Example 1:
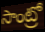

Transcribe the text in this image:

సాంట్రో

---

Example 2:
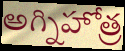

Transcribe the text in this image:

అగ్నిహోత్ర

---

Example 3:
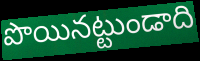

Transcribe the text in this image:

పొయినట్టుండాది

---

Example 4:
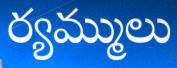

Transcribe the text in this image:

ర్యమ్ములు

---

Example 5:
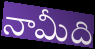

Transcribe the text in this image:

నామీది